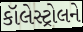
કૉલેસ્ટ્રોલને